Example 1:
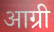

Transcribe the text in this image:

आग्री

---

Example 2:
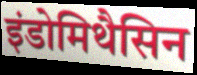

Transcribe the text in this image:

इंडोमिथैसिन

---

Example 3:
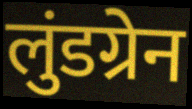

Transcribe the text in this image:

लुंडग्रेन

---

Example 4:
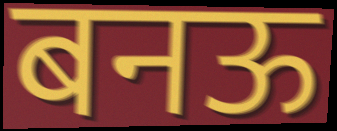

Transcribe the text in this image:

बनऊ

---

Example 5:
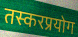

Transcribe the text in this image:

तस्करप्रयोग